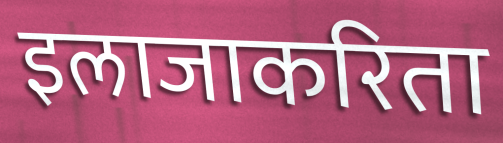
इलाजाकरिता